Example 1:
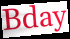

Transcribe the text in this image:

Bday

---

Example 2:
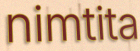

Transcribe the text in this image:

nimtita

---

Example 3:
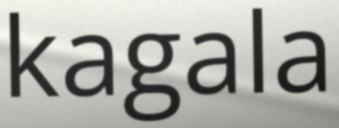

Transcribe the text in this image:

kagala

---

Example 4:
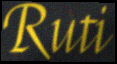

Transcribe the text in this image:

Ruti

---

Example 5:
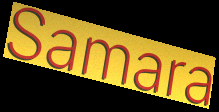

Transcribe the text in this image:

Samara